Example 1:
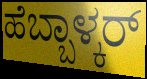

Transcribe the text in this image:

ಹೆಬ್ಬಾಳ್ಕರ್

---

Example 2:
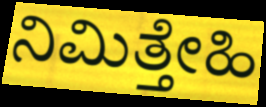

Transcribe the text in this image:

ನಿಮಿತ್ತೇಹಿ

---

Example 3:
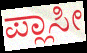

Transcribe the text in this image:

ಪ್ಲಾಸೀ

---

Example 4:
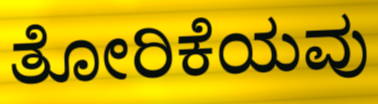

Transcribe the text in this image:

ತೋರಿಕೆಯವು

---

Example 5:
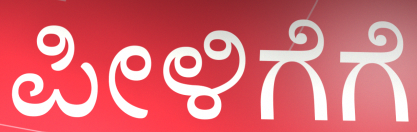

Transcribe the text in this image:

ಪೀಳಿಗೆಗೆ